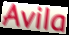
Avila